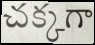
చక్కగా